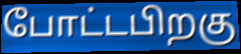
போட்டபிறகு